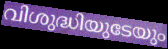
വിശുദ്ധിയുടേയും